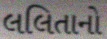
લલિતાનો